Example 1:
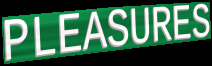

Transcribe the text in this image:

PLEASURES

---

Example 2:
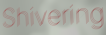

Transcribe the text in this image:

Shivering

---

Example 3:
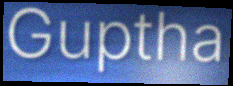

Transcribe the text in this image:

Guptha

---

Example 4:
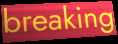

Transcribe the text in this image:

breaking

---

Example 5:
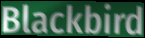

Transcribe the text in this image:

Blackbird